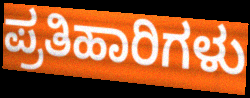
ಪ್ರತಿಹಾರಿಗಳು